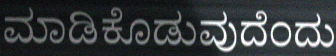
ಮಾಡಿಕೊಡುವುದೆಂದು